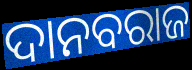
ଦାନବରାଜ